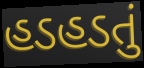
હડહડતું